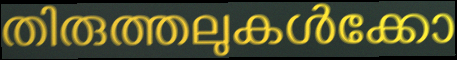
തിരുത്തലുകൾക്കോ